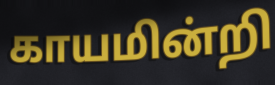
காயமின்றி